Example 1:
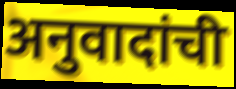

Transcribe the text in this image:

अनुवादांची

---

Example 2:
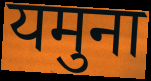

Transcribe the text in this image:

यमुना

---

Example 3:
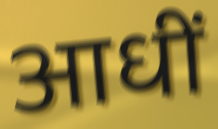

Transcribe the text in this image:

आधीं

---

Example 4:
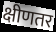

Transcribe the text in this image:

क्षीणतर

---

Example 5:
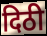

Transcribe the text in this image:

दिठी